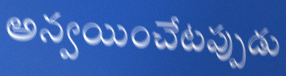
అన్వయించేటప్పుడు